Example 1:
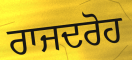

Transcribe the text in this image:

ਰਾਜਦਰੋਹ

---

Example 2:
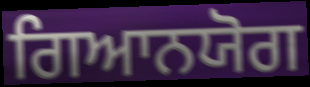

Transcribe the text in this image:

ਗਿਆਨਯੋਗ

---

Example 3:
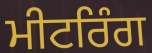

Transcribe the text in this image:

ਮੀਟਰਿੰਗ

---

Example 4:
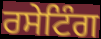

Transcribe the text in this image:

ਰਸੇਟਿੰਗ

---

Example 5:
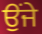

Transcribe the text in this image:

ਉਂਜੇ